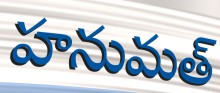
హనుమత్